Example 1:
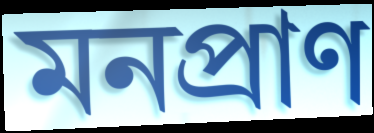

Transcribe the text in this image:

মনপ্রাণ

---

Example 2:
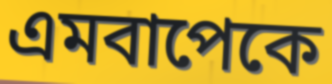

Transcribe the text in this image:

এমবাপেকে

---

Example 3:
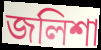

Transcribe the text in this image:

জলিশা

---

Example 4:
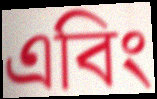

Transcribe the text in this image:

এবিং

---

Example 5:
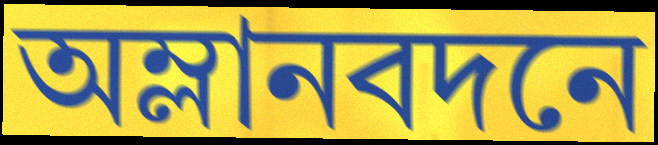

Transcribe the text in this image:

অম্লানবদনে